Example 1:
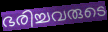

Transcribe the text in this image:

ഭരിച്ചവരുടെ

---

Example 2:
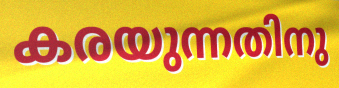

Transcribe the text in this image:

കരയുന്നതിനു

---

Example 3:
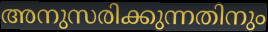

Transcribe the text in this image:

അനുസരിക്കുന്നതിനും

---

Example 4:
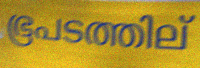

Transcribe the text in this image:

ഭൂപടത്തില്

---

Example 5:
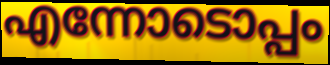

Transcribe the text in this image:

എന്നോടൊപ്പം